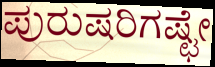
ಪುರುಷರಿಗಷ್ಟೇ